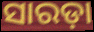
ସାରଡ଼ା